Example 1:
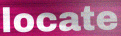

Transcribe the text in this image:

locate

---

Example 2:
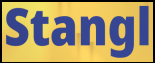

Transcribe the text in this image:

Stangl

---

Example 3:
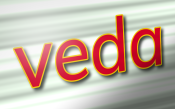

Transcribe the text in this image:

veda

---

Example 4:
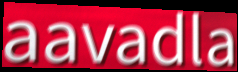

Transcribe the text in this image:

aavadla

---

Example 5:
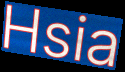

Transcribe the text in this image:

Hsia